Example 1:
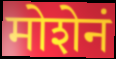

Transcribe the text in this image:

मोशेनं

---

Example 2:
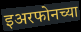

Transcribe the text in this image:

इअरफोनच्या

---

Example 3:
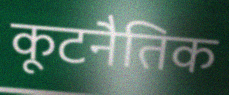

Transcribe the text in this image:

कूटनैतिक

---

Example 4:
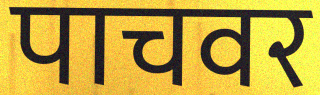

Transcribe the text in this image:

पाचवर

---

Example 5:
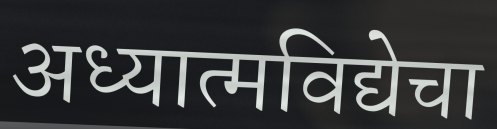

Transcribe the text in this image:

अध्यात्मविद्येचा